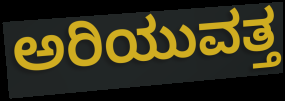
ಅರಿಯುವತ್ತ